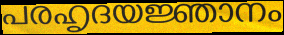
പരഹൃദയജ്ഞാനം